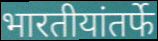
भारतीयांतर्फे